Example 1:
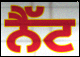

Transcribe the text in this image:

ਨੈੱਟ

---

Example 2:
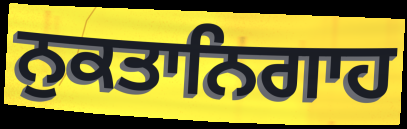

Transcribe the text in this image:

ਨੁਕਤਾਨਿਗਾਹ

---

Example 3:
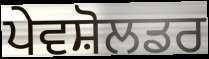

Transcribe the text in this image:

ਪੇਵਸ਼ੋਲਡਰ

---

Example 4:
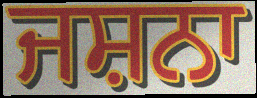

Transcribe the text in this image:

ਜਸ਼ਨਾ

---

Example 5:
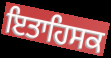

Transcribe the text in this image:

ਇਤਾਹਿਸਕ